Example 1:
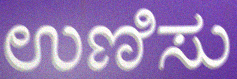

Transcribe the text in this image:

ಉಣಿಸು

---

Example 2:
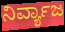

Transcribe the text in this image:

ನಿರ್ವ್ಯಾಜ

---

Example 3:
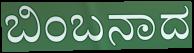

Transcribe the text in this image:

ಬಿಂಬನಾದ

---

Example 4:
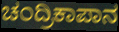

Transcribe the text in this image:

ಚಂದ್ರಿಕಾಪಾನ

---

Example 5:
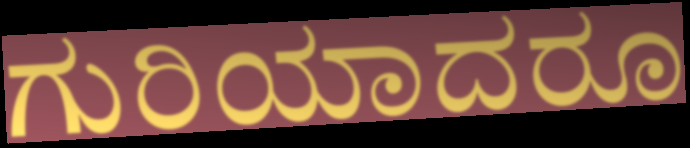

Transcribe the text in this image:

ಗುರಿಯಾದರೂ